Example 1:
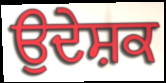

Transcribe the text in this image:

ਉਦੇਸ਼ਕ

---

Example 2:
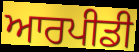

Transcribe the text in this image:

ਆਰਪੀਡੀ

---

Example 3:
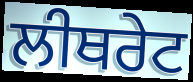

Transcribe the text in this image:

ਲੀਥਰੇਟ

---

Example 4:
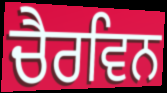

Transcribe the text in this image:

ਚੈਰਵਿਨ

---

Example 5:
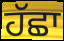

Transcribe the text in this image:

ਹੱਛਾ